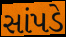
સાંપડે